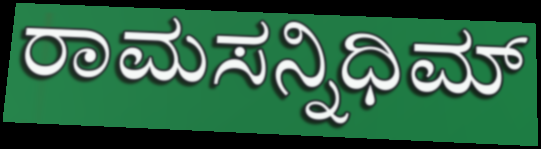
ರಾಮಸನ್ನಿಧಿಮ್